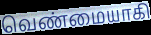
வெண்மையாகி